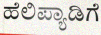
ಹೆಲಿಪ್ಯಾಡಿಗೆ